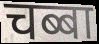
चब्बा